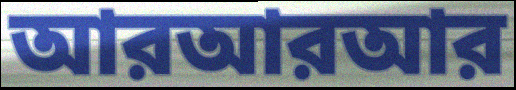
আরআরআর